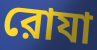
রোযা